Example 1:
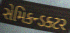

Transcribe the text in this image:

સેમિકન્ડક્ટર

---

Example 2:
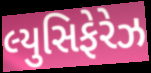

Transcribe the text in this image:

લ્યુસિફેરેઝ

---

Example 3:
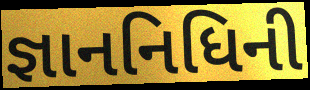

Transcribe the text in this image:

જ્ઞાનનિધિની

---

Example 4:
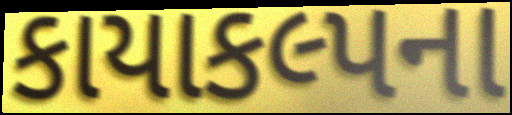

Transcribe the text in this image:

કાયાકલ્પના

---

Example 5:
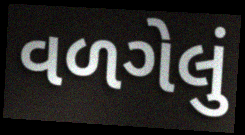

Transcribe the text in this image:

વળગેલું